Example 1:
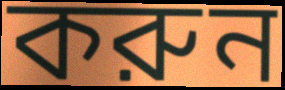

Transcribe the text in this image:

করুন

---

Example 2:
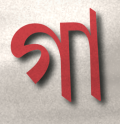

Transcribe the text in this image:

গা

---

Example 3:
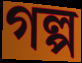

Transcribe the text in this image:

গল্প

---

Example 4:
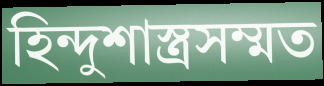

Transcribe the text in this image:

হিন্দুশাস্ত্রসম্মত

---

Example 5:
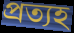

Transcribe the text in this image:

প্রত্যহ